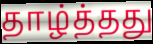
தாழ்த்தது